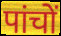
पांचों